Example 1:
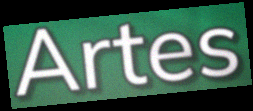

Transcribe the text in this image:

Artes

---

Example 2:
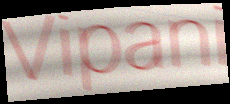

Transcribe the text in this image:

Vipani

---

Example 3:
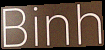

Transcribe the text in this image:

Binh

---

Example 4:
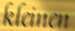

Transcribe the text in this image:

kleinen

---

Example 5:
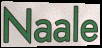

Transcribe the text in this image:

Naale